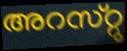
അറസ്‌റ്റു